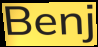
Benj